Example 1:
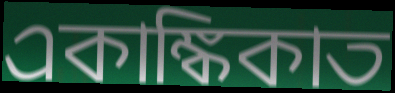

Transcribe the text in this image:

একাঙ্কিকাত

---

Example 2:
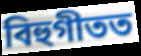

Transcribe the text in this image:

বিহুগীতত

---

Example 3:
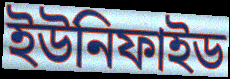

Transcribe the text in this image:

ইউনিফাইড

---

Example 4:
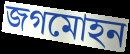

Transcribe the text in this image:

জগমোহন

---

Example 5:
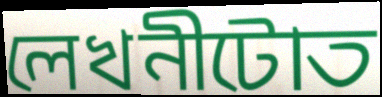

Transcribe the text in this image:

লেখনীটোত